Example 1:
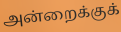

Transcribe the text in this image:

அன்றைக்குக்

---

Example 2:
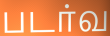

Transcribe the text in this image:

படர்வ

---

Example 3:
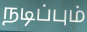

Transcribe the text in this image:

நடிப்பும்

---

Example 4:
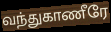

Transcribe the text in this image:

வந்துகாணீரே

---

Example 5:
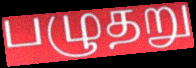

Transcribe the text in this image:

பழுதறு